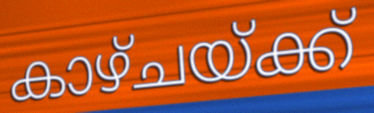
കാഴ്ചയ്ക്ക്